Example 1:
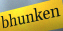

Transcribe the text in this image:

bhunken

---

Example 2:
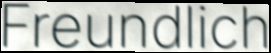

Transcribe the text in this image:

Freundlich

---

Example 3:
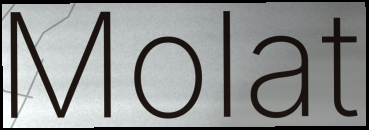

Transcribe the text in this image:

Molat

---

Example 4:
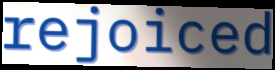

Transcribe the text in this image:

rejoiced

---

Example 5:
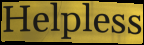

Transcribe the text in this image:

Helpless